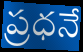
ప్రధనే